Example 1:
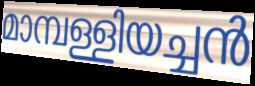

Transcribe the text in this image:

മാമ്പള്ളിയച്ചൻ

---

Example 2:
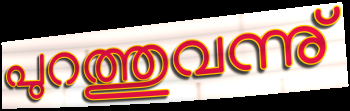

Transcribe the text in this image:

പുറത്തുവന്നു്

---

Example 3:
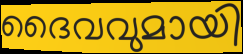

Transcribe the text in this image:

ദൈവവുമായി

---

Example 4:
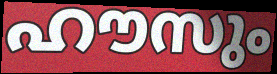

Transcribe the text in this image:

ഹൗസും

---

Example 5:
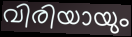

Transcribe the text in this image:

വിരിയായും